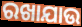
ରଖାଯାଉ